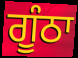
ਗੂੰਠਾ